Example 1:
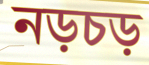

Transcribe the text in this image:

নড়চড়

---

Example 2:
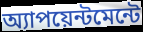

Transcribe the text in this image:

অ্যাপয়েন্টমেন্টে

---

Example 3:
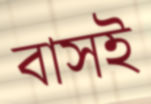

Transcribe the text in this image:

বাসই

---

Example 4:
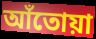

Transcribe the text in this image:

আঁতোয়া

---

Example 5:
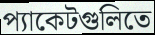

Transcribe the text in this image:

প্যাকেটগুলিতে